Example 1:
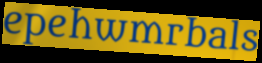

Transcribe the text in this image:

epehwmrbals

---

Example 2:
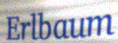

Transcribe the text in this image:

Erlbaum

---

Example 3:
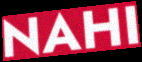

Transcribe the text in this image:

NAHI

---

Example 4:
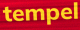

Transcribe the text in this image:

tempel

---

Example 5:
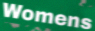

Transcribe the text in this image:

Womens